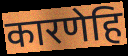
कारणेहि